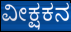
ವೀಕ್ಷಕನ